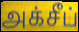
அக்சீப்